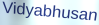
Vidyabhusan